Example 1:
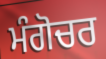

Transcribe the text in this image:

ਮੰਗੋਚਰ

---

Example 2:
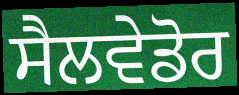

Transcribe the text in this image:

ਸੈਲਵੇਡੋਰ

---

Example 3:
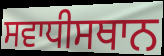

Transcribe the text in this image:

ਸਵਾਧੀਸਥਾਨ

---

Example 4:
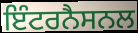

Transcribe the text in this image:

ਇੰਟਰਨੈਸਨਲ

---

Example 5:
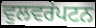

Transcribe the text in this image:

ਵੁਲਵਰਂਪਟਨ